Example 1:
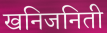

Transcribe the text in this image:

खनिजनिती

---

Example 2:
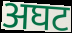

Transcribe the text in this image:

अघट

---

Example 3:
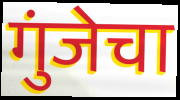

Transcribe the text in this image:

गुंजेचा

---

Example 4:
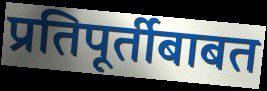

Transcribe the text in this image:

प्रतिपूर्तीबाबत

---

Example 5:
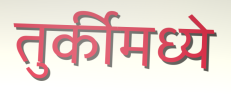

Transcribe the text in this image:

तुर्कीमध्ये